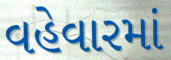
વહેવારમાં